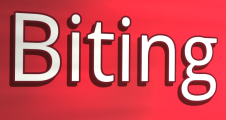
Biting